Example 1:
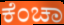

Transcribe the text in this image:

ಕೆಂಚಾ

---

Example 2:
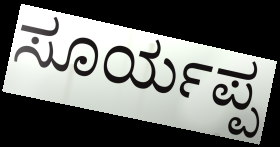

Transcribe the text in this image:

ಸೂರ್ಯಪ್ಪ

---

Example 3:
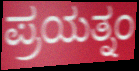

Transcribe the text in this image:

ಪ್ರಯತ್ನಂ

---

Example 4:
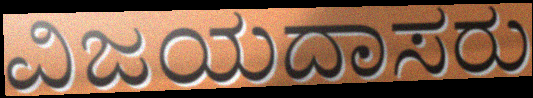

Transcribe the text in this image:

ವಿಜಯದಾಸರು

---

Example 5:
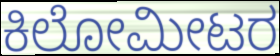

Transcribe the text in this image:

ಕಿಲೋಮೀಟರ